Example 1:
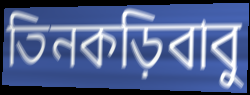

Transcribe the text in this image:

তিনকড়িবাবু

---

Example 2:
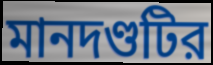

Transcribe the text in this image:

মানদণ্ডটির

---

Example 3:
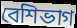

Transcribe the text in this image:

বেশিভাগ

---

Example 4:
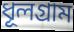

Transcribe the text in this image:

ধূলগ্রাম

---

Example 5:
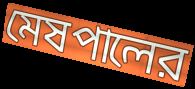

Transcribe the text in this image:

মেষপালের